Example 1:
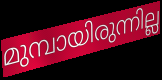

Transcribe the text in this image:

മുമ്പായിരുന്നില്ല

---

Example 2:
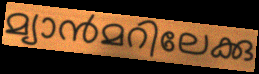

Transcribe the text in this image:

മ്യാൻമറിലേക്കു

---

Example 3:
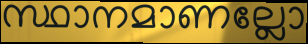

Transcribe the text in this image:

സ്ഥാനമാണല്ലോ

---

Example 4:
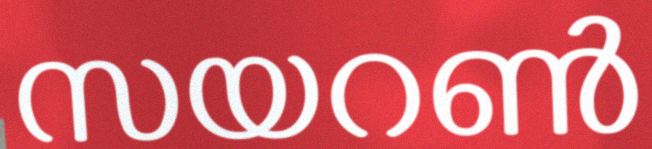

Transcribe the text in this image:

സയറൺ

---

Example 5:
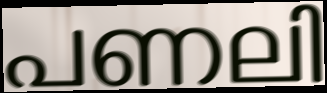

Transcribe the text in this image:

പണലി